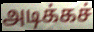
அடிக்கச்